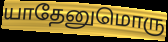
யாதேனுமொரு